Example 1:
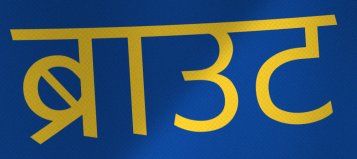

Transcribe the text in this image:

ब्राउट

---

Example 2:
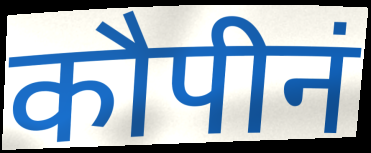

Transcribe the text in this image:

कौपीनं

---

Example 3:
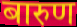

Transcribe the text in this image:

बारुण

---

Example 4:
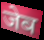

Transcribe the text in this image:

जेब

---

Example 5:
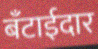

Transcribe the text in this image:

बँटाईदार